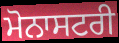
ਮੋਨਾਸਟਰੀ